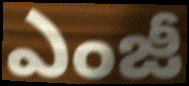
ఎంజీ